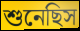
শুনেছিস